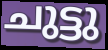
ചുട്ടു